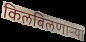
किलबिलणाऱ्या